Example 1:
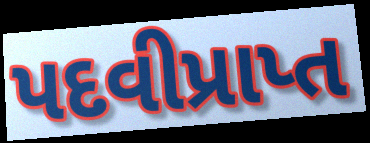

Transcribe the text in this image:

પદવીપ્રાપ્ત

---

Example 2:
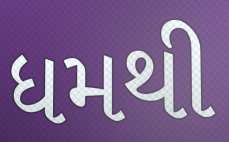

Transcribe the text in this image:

ધમથી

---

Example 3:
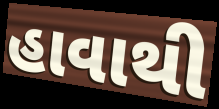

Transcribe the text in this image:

હાવાથી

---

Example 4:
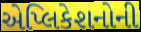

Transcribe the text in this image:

એપ્લિકેશનોની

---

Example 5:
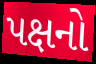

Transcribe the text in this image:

પક્ષનો